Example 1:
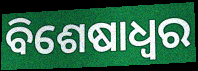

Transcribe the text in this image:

ବିଶେଷାଧ୍ଵର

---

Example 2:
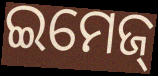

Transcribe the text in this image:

ଇମେଜ୍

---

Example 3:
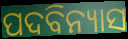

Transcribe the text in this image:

ପଦବିନ୍ୟାସ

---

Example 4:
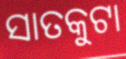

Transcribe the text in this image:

ସାତକୁଟା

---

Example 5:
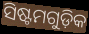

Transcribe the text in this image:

ସିଷ୍ଟମଗୁଡ଼ିକ